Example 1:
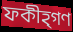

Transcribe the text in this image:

ফকীহ্গণ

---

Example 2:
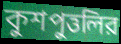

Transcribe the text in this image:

কুশপুত্তলির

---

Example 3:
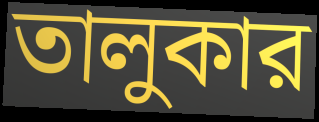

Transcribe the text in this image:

তালুকার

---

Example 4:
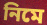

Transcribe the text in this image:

নিমে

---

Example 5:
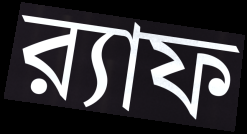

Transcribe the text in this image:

র‍্যাফ